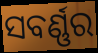
ସବର୍ଣ୍ଣର